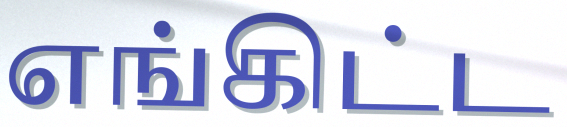
எங்கிட்ட